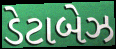
ડેટાબેઝ